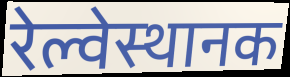
रेल्वेस्थानक